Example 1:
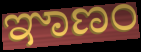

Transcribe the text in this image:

ಞಾಣಂ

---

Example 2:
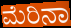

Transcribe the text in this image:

ಮೆರಿನಾ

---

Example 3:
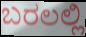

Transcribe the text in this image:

ಬರಲಲ್ಲಿ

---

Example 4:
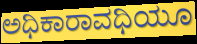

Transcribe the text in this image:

ಅಧಿಕಾರಾವಧಿಯೂ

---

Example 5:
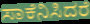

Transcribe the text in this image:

ಸಾಕೆನಿಸಿದರೆ